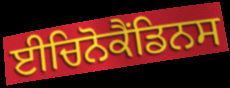
ਈਚਿਨੋਕੈਂਡਿਨਸ